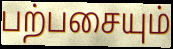
பற்பசையும்